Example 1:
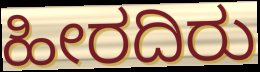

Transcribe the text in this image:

ಹೀರದಿರು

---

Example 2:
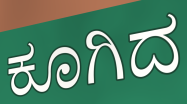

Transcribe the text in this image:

ಕೂಗಿದ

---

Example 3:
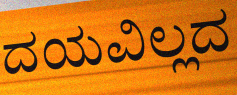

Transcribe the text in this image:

ದಯವಿಲ್ಲದ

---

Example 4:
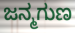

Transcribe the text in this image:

ಜನ್ಮಗುಣ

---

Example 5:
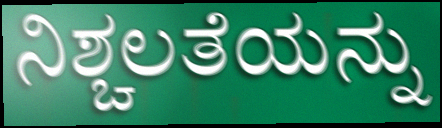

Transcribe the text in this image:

ನಿಶ್ಚಲತೆಯನ್ನು